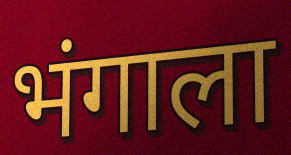
भंगाला